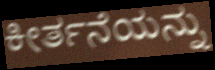
ಕೀರ್ತನೆಯನ್ನು